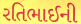
રતિભાઈની